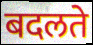
बदलते